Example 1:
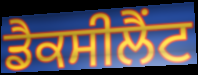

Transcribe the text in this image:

ਡੈਕਸੀਲੈਂਟ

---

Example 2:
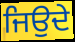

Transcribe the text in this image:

ਜਿਉਦੇ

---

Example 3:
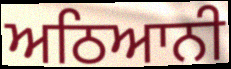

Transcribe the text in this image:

ਅਠਿਆਨੀ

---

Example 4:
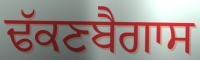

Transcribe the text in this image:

ਢੱਕਣਬੈਗਾਸ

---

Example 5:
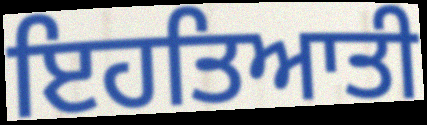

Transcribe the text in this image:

ਇਹਤਿਆਤੀ